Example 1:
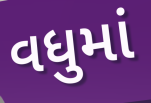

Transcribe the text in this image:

વધુમાં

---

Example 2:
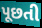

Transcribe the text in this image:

પૂછતી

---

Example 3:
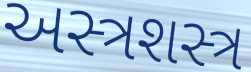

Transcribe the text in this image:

અસ્ત્રશસ્ત્ર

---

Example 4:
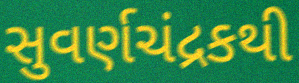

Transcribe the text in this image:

સુવર્ણચંદ્રકથી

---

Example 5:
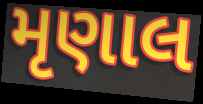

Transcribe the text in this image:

મૃણાલ